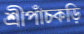
শ্রীপাঁচকড়ি